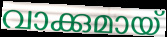
വാക്കുമായ്